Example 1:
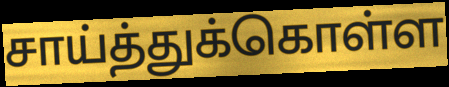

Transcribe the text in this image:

சாய்த்துக்கொள்ள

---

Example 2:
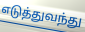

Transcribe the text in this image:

எடுத்துவந்து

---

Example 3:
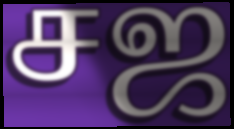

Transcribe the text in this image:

சஜ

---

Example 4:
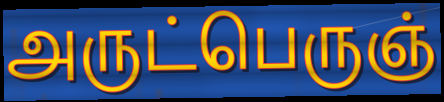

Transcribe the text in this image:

அருட்பெருஞ்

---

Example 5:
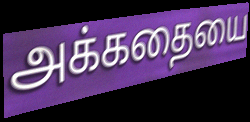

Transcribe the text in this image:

அக்கதையை